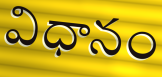
విధానం